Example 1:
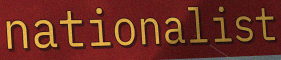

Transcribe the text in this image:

nationalist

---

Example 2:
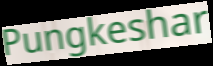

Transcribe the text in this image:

Pungkeshar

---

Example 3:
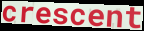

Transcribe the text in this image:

crescent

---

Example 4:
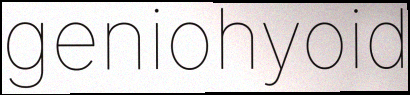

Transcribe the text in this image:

geniohyoid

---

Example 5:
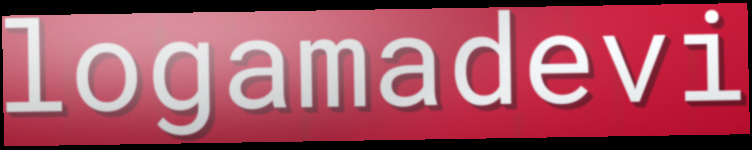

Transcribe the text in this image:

logamadevi